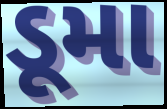
ડૂમા